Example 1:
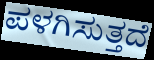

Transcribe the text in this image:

ಪಳಗಿಸುತ್ತದೆ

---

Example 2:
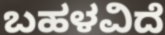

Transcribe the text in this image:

ಬಹಳವಿದೆ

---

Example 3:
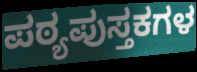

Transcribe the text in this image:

ಪಠ್ಯಪುಸ್ತಕಗಳ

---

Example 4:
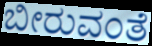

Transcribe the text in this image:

ಬೀರುವಂತೆ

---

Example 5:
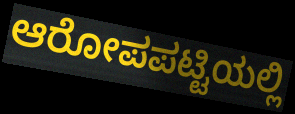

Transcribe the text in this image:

ಆರೋಪಪಟ್ಟಿಯಲ್ಲಿ